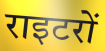
राइटरों